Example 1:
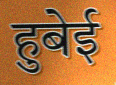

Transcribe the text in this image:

हुबेई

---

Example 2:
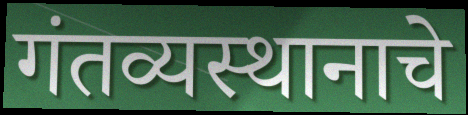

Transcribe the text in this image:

गंतव्यस्थानाचे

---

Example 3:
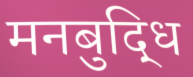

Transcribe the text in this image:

मनबुद्धि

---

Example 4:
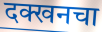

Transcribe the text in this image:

दक्खनचा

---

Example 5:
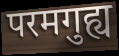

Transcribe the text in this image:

परमगुह्य